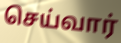
செய்வார்